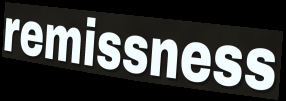
remissness